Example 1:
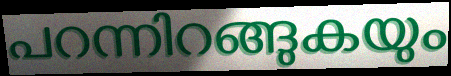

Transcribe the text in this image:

പറന്നിറങ്ങുകയും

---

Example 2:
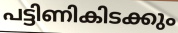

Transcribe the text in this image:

പട്ടിണികിടക്കും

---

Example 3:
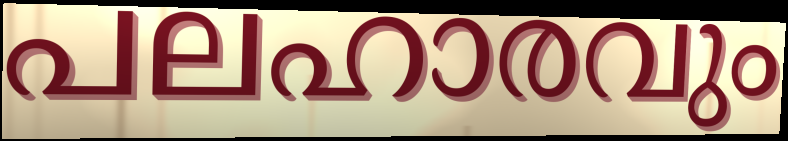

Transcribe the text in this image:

പലഹാരവും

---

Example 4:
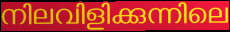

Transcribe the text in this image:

നിലവിളിക്കുന്നിലെ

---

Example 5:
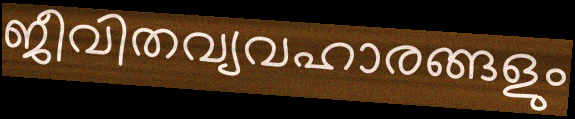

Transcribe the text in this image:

ജീവിതവ്യവഹാരങ്ങളും